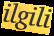
ilgili